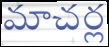
మాచర్ల